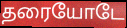
தரையோடே